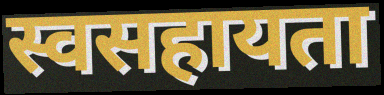
स्वसहायता